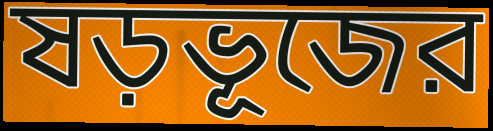
ষড়ভূজের